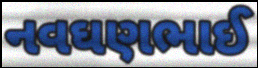
નવઘણભાઈ